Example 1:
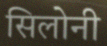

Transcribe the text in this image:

सिलोनी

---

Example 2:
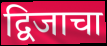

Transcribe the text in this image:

द्विजाचा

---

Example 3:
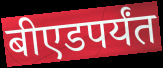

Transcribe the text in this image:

बीएडपर्यंत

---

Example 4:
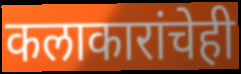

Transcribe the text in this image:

कलाकारांचेही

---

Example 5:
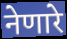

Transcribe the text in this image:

नेणारे